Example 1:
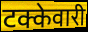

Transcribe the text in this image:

टक्केवारी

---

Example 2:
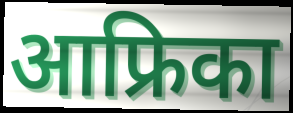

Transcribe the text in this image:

आफ्रिका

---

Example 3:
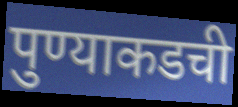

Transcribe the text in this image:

पुण्याकडची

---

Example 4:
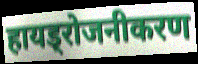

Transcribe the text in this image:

हायड्रोजनीकरण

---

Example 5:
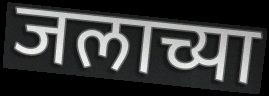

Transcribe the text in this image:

जलाच्या